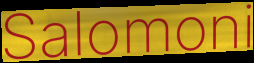
Salomoni